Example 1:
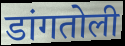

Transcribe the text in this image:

डांगतोली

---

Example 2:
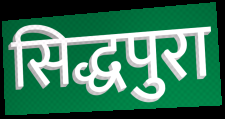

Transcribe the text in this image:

सिद्धपुरा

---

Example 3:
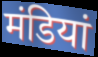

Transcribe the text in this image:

मंडियां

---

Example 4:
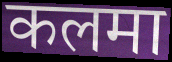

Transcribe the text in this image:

कलमा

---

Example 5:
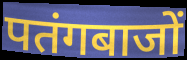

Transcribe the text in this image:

पतंगबाजों